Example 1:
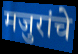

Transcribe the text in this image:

मजुरांचे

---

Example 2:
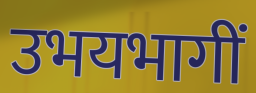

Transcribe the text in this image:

उभयभागीं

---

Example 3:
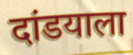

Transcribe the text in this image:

दांडयाला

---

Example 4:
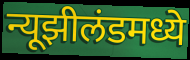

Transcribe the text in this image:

न्यूझीलंडमध्ये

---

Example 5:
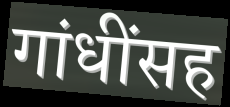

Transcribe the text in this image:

गांधींसह